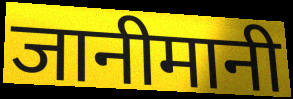
जानीमानी